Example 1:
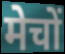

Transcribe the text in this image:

मेचों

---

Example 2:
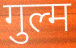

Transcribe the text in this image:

गुल्म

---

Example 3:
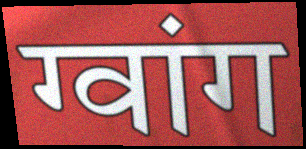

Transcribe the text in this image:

ग्वांग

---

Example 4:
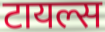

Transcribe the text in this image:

टायल्स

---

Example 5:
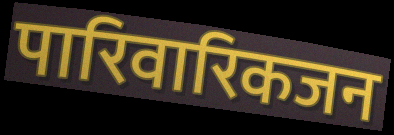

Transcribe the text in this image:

पारिवारिकजन